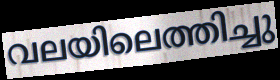
വലയിലെത്തിച്ചു